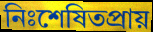
নিঃশেষিতপ্রায়